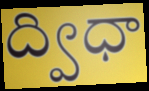
ద్విధా